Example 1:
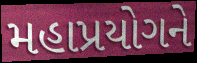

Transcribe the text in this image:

મહાપ્રયોગને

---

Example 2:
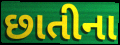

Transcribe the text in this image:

છાતીના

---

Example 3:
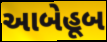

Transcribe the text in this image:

આબેહૂબ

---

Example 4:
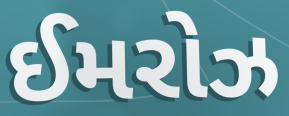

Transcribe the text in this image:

ઈમરોઝ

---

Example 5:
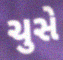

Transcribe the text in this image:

ચુસે